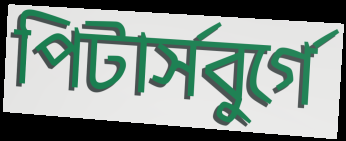
পিটাৰ্সবুৰ্গে